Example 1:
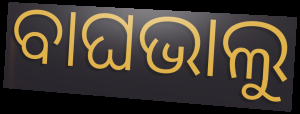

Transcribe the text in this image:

ବାଘଭାଲୁ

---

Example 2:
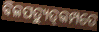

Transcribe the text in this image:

ବିଳପତ୍ୟୁତ୍‌କମ୍ପତେ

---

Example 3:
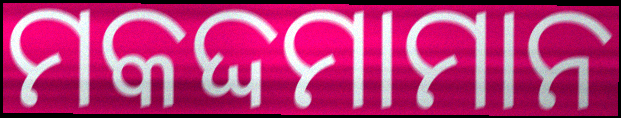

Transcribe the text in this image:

ମକଦ୍ଦମାମାନ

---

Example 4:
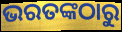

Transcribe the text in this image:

ଭରତଙ୍କଠାରୁ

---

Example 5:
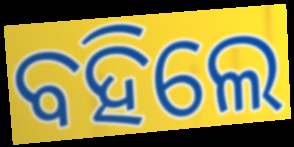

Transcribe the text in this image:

ବହିଲେ